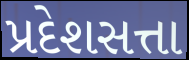
પ્રદેશસત્તા